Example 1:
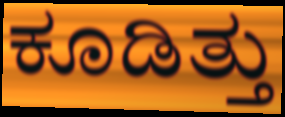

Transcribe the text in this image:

ಕೂಡಿತ್ತು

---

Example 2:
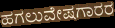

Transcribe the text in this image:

ಹಗಲುವೇಷಗಾರರ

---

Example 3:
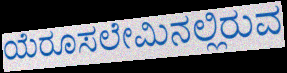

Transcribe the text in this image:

ಯೆರೂಸಲೇಮಿನಲ್ಲಿರುವ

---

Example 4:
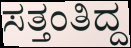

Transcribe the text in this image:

ಸತ್ತಂತಿದ್ದ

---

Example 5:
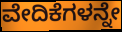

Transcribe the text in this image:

ವೇದಿಕೆಗಳನ್ನೇ